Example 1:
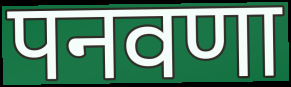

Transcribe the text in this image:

पनवणा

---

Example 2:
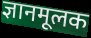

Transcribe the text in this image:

ज्ञानमूलक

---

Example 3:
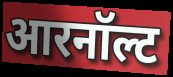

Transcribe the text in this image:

आरनॉल्ट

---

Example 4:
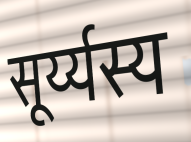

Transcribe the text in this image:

सूर्य्यस्य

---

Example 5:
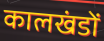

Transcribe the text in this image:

कालखंडों